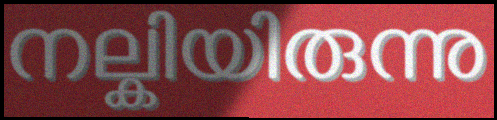
നല്കിയിരുന്നു